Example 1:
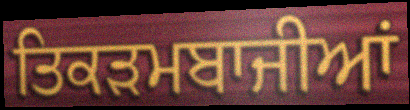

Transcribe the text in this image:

ਤਿਕੜਮਬਾਜੀਆਂ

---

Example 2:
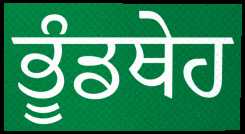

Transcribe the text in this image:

ਭੂੰਡਥੇਹ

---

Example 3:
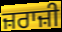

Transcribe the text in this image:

ਜ਼ਰਾਜ਼ੀ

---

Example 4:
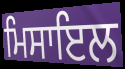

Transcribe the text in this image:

ਮਿਸਾਇਲ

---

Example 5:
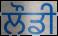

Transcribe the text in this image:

ਲੌਡੀ